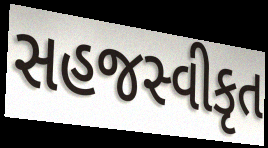
સહજસ્વીકૃત